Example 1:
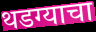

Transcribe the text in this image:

थडग्याचा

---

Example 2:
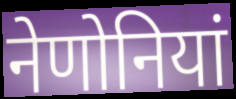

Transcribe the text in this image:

नेणोनियां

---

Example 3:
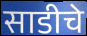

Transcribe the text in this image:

साडीचे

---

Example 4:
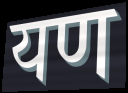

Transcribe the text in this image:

यण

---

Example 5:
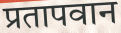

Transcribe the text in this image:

प्रतापवान